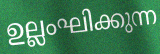
ഉല്ലംഘിക്കുന്ന